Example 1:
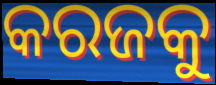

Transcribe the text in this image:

କରଜକୁ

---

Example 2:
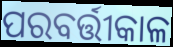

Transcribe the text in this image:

ପରବର୍ତ୍ତୀକାଳ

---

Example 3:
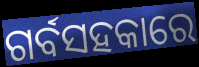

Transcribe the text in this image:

ଗର୍ବସହକାରେ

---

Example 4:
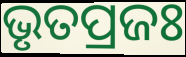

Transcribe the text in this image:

ଭୃତପ୍ରଜଃ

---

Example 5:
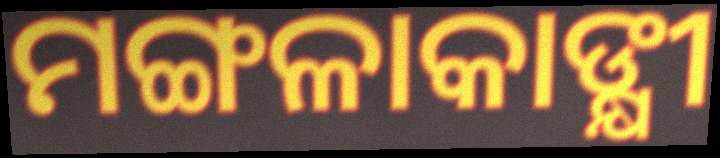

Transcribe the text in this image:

ମଙ୍ଗଳାକାଙ୍କ୍ଷୀ